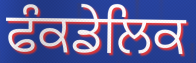
ਫੰਕਡੇਲਿਕ